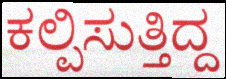
ಕಲ್ಪಿಸುತ್ತಿದ್ದ